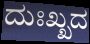
ದುಃಖ್ಖದ